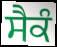
ਸੈਕੰ